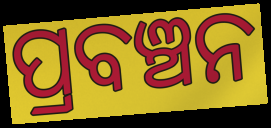
ପ୍ରବଞ୍ଚନ